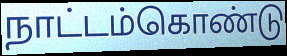
நாட்டம்கொண்டு